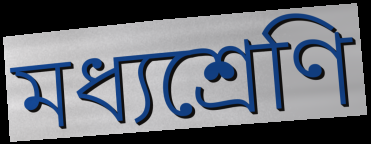
মধ্যশ্রেণি